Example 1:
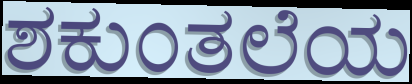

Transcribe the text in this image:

ಶಕುಂತಲೆಯ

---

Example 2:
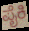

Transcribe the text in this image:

ಪೈಕಿ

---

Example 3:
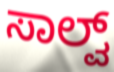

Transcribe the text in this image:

ಸಾಲ್ವ್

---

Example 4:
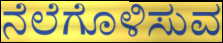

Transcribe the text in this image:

ನೆಲೆಗೊಳಿಸುವ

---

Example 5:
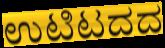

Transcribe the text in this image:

ಉಟಿಟದದ